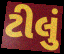
ટીલું